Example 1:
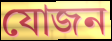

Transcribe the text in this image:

যোজন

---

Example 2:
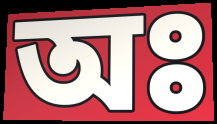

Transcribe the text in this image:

অঃ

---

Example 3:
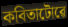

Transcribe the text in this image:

কবিতাটোৱে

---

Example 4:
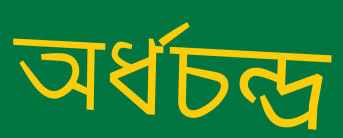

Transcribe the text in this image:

অৰ্ধচন্দ্ৰ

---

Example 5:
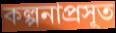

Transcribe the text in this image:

কল্পনাপ্ৰসূত